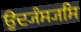
ਉਦ੍ਯੰਸ੍ਯਸਿ